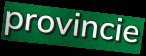
provincie